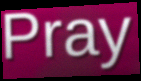
Pray